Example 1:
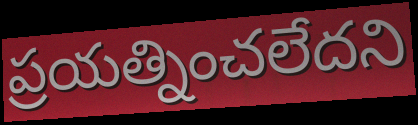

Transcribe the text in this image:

ప్రయత్నించలేదని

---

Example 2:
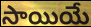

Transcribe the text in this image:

సాయియే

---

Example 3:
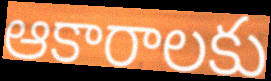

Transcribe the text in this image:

ఆకారాలకు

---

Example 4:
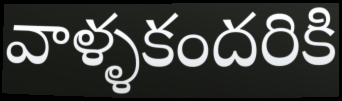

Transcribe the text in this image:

వాళ్ళకందరికి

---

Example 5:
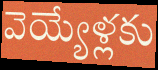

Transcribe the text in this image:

వెయ్యేళ్లకు